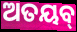
ଅତୟବ୍